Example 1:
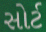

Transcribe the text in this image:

સોર્ટ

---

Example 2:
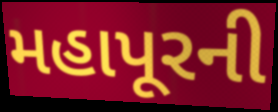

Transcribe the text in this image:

મહાપૂરની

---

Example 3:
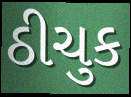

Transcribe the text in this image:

ઠીચુક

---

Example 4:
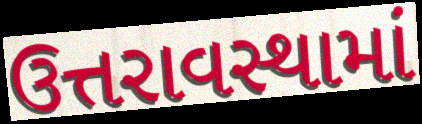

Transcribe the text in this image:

ઉત્તરાવસ્થામાં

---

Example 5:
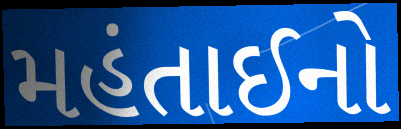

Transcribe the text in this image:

મહંતાઈનો